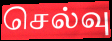
செல்வு